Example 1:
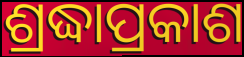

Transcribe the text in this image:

ଶ୍ରଦ୍ଧାପ୍ରକାଶ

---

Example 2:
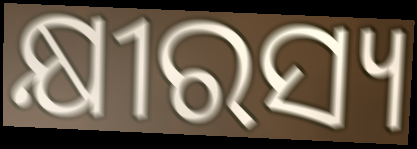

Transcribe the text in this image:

କ୍ଷୀରସ୍ୟ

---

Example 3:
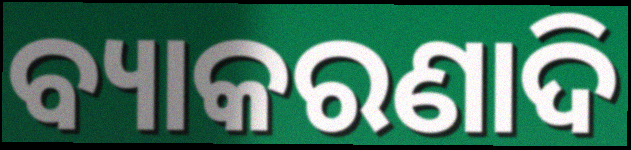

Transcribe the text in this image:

ବ୍ୟାକରଣାଦି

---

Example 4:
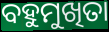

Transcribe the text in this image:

ବହୁମୁଖିତା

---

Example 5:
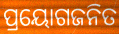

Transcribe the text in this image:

ପ୍ରୟୋଗଜନିତ